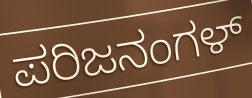
ಪರಿಜನಂಗಳ್